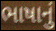
ભાષાનું